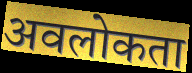
अवलोकता